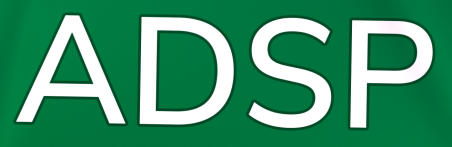
ADSP